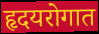
हृदयरोगात